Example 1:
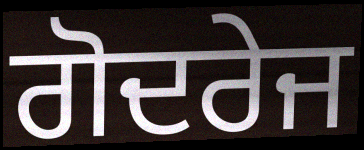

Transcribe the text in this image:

ਗੋਦਰੇਜ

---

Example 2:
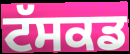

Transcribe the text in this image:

ਟੱਸਕਡ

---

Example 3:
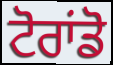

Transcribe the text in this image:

ਟੋਰਾਂਡੋ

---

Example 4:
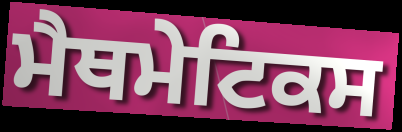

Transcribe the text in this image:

ਮੈਥਮੇਟਿਕਸ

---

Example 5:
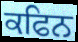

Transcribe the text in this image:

ਕਫਿਨ